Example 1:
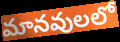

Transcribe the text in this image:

మానవులలో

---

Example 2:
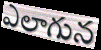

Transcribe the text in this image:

ఎలాగున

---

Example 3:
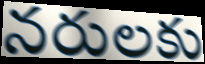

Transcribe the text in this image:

నరులకు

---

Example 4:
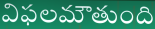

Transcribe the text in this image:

విఫలమౌతుంది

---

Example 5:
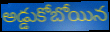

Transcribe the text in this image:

అడ్డుకోబోయిన